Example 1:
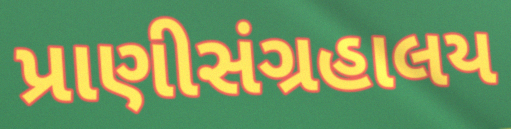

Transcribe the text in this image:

પ્રાણીસંગ્રહાલય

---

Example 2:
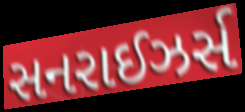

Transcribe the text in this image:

સનરાઈઝર્સ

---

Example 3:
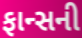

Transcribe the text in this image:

ફાન્સની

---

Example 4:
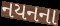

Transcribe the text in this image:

નયનના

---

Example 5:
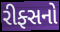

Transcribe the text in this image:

રીફ્સનો